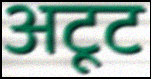
अटूट